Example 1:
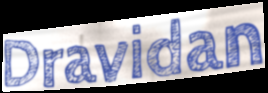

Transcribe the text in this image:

Dravidan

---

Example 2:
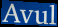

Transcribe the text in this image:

Avul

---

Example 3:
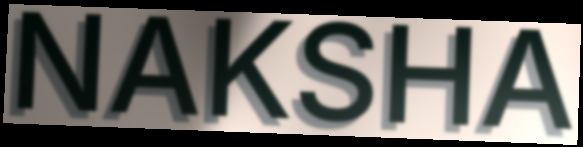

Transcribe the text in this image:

NAKSHA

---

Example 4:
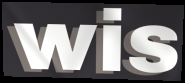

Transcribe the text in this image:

wis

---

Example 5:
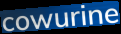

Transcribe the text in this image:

cowurine